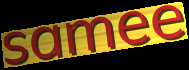
samee